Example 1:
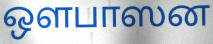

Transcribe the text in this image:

ஒளபாஸன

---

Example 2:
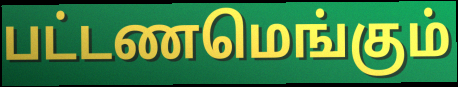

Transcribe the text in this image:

பட்டணமெங்கும்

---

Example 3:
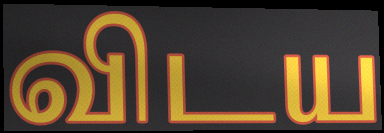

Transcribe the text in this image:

விடய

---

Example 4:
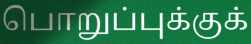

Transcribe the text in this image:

பொறுப்புக்குக்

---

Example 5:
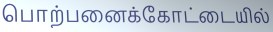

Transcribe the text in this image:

பொற்பனைக்கோட்டையில்